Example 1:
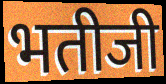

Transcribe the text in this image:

भतीजी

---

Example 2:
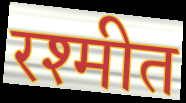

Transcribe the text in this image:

रश्मीत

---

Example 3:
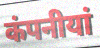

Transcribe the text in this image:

कंपनीयां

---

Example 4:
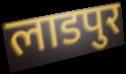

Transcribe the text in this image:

लाडपुर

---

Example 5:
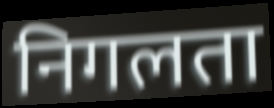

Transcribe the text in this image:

निगलता